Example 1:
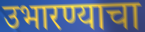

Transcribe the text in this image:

उभारण्याचा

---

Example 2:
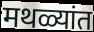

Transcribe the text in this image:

मथळ्यांत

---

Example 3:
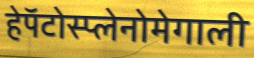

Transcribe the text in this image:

हेपॅटोस्प्लेनोमेगाली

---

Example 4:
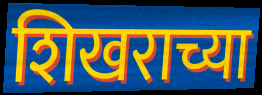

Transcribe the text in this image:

शिखराच्या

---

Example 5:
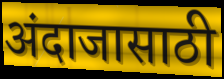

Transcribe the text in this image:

अंदाजासाठी